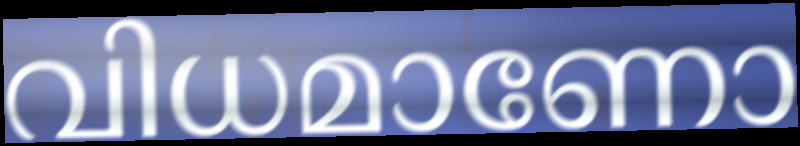
വിധമാണോ